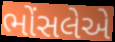
ભોંસલેએ